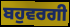
ਬਹੁਵਰਗੀ